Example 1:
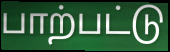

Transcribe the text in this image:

பாற்பட்டு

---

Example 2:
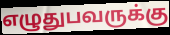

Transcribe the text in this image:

எழுதுபவருக்கு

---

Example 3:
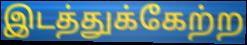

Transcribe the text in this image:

இடத்துக்கேற்ற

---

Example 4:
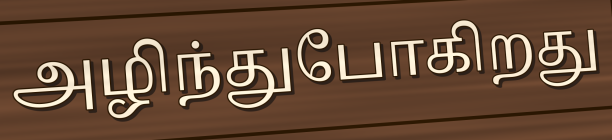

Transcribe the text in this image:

அழிந்துபோகிறது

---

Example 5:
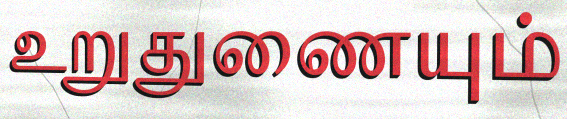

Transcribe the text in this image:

உறுதுணையும்